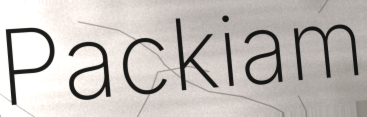
Packiam